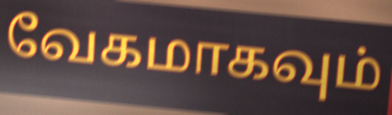
வேகமாகவும்